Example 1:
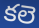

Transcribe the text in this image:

కలె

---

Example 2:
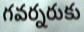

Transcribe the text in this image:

గవర్నరుకు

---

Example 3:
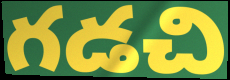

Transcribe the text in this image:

గడచి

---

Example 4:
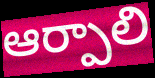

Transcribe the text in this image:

ఆర్పాలి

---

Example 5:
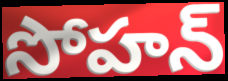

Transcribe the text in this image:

సోహన్